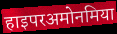
हाइपरअमोनमिया